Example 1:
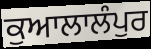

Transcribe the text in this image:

ਕੁਆਲਾਲੰਪੁਰ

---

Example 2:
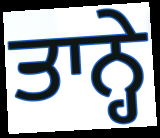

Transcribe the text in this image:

ਤਾਨ੍ਹੇ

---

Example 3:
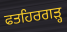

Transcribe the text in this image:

ਫਤਹਿਰਗੜ੍ਹ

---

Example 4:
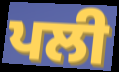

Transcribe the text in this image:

ਪਲੀ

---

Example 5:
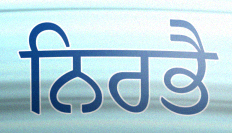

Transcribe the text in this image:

ਨਿਰਭੈ